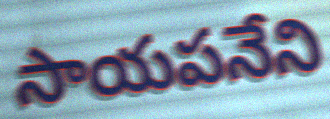
సాయపనేని